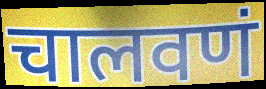
चालवणं